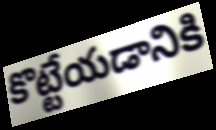
కొట్టేయడానికి